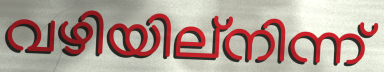
വഴിയില്നിന്ന്